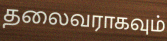
தலைவராகவும்